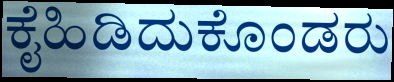
ಕೈಹಿಡಿದುಕೊಂಡರು